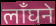
लाँघने